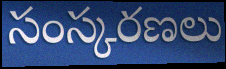
సంస్కరణలు